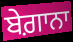
ਬੇਗ਼ਾਨਾ